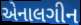
એનાલગીન